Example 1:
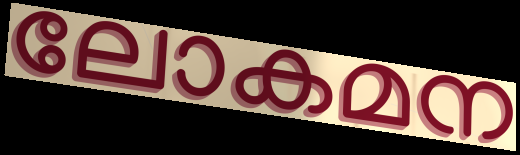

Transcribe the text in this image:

ലോകമന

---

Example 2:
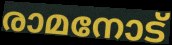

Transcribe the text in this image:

രാമനോട്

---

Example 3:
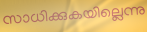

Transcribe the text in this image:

സാധിക്കുകയില്ലെന്നു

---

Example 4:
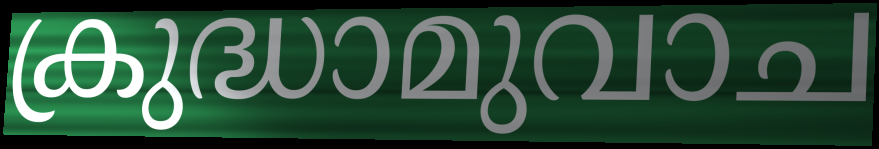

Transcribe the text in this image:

ക്രുദ്ധാമുവാച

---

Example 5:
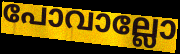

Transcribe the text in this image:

പോവാല്ലോ